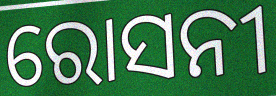
ରୋସନୀ